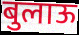
बुलाऊ